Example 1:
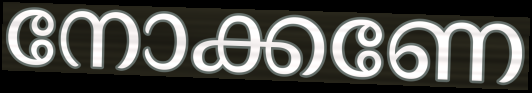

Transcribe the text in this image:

നോക്കണേ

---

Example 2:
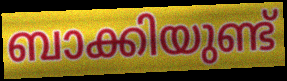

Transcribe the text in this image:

ബാക്കിയുണ്ട്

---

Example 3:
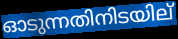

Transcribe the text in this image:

ഓടുന്നതിനിടയില്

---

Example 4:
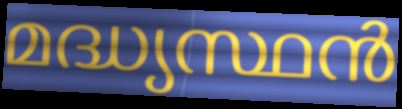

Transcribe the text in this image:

മദ്ധ്യസ്ഥൻ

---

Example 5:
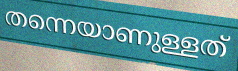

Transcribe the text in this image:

തന്നെയാണുള്ളത്